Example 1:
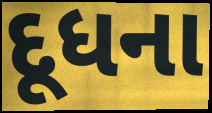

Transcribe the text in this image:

દૂધના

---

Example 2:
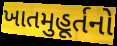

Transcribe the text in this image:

ખાતમુહૂર્તનો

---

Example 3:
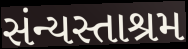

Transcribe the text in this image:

સંન્યસ્તાશ્રમ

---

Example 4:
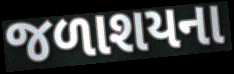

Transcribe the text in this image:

જળાશયના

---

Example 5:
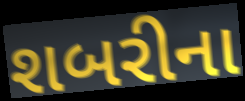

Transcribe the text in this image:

શબરીના